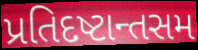
પ્રતિદષ્ટાન્તસમ